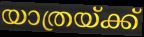
യാത്രയ്ക്ക്